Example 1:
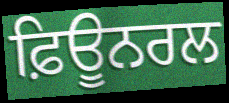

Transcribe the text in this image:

ਫ਼ਿਊਨਰਲ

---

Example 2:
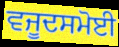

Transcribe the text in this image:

ਵਜੂਦਸਮੋਈ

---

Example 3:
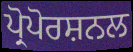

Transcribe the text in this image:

ਪ੍ਰੋਪੋਰਸ਼ਨਲ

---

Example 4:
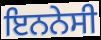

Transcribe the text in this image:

ਇਨਨੇਸੀ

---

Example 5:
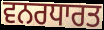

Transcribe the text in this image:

ਵਨਰਧਾਰਤ